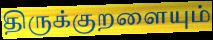
திருக்குறளையும்